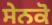
ਸੇਨਕੋ